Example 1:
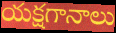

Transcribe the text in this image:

యక్షగానాలు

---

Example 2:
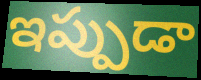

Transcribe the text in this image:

ఇప్పుడా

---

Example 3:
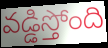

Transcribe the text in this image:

వడ్డిస్తోంది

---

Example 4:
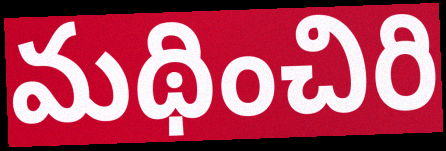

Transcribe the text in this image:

మథించిరి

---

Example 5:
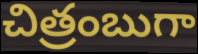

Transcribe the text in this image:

చిత్రంబుగా